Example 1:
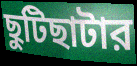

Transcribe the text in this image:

ছুটিছাটার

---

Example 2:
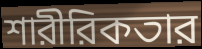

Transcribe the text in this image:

শারীরিকতার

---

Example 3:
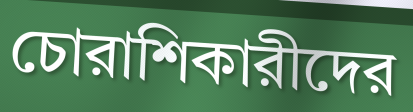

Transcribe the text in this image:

চোরাশিকারীদের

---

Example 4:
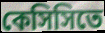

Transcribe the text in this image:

কেসিসিতে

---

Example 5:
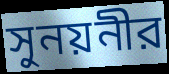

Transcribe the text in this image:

সুনয়নীর